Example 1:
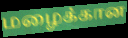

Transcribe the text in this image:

மழைக்கான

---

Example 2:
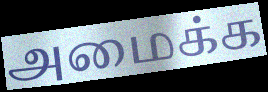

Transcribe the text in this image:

அமைக்க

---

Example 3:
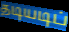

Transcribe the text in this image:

தடியடிப்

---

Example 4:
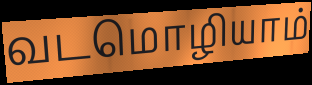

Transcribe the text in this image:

வடமொழியாம்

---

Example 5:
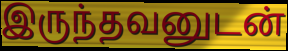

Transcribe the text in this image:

இருந்தவனுடன்